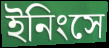
ইনিংসে